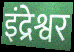
इंद्रेश्वर